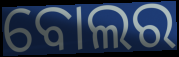
ବୋଲର